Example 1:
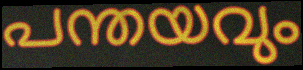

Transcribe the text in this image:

പന്തയവും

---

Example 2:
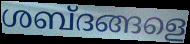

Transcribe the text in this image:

ശബ്ദങ്ങളെ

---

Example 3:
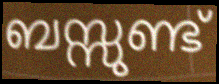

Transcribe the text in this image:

ബസ്സുണ്ട്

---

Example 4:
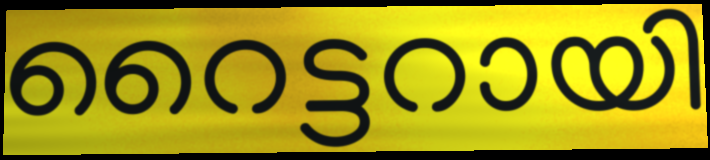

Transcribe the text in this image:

റൈട്ടറായി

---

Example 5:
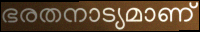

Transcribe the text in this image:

ഭരതനാട്യമാണ്